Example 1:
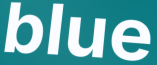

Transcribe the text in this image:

blue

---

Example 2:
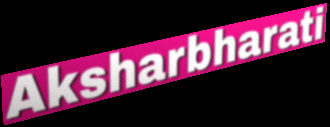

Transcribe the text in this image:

Aksharbharati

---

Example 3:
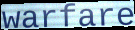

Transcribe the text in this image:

warfare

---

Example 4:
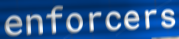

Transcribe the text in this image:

enforcers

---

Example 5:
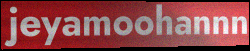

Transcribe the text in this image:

jeyamoohannn